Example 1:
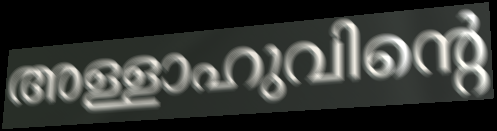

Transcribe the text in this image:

അള്ളാഹുവിന്റെ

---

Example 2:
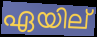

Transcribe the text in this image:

ഏയില്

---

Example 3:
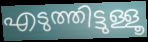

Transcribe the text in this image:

എടുത്തിട്ടുള്ളൂ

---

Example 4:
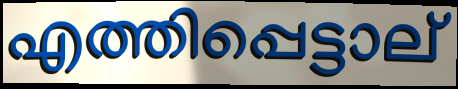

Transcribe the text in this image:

എത്തിപ്പെട്ടാല്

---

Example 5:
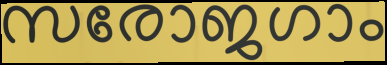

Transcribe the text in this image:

സരോജഗാം